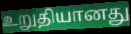
உறுதியானது